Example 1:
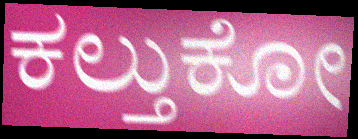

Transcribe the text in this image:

ಕಲ್ತುಕೋ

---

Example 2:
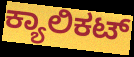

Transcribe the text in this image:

ಕ್ಯಾಲಿಕಟ್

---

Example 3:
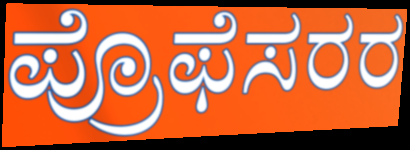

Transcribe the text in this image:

ಪ್ರೊಫೆಸರರ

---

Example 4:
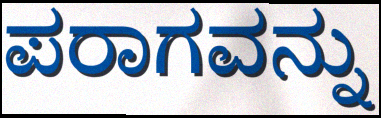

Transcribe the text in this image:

ಪರಾಗವನ್ನು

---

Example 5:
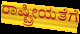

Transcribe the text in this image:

ರಾಷ್ಟ್ರೀಯತೆಗೆ